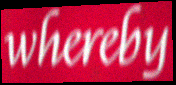
whereby